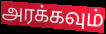
அரக்கவும்